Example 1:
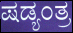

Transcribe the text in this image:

ಷಡ್ಯಂತ್ರ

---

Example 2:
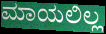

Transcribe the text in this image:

ಮಾಯಲಿಲ್ಲ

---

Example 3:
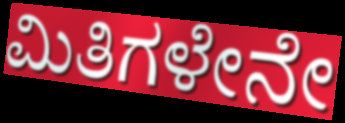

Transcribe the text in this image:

ಮಿತಿಗಳೇನೇ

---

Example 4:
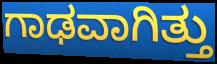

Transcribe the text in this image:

ಗಾಢವಾಗಿತ್ತು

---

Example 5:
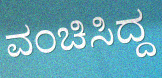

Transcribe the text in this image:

ವಂಚಿಸಿದ್ದ